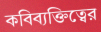
কবিব্যক্তিত্বের